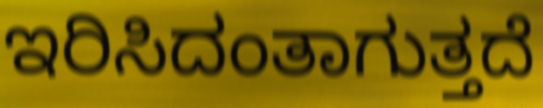
ಇರಿಸಿದಂತಾಗುತ್ತದೆ